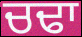
ਚਢਾ